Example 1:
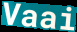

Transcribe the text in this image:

Vaai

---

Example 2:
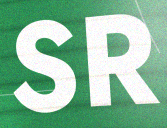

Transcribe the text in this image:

SR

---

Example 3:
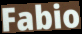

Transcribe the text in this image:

Fabio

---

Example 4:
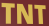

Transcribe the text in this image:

TNT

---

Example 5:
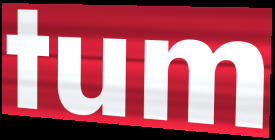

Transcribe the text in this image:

tum